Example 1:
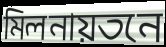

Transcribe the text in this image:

মিলনায়তনে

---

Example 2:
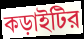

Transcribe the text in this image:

কড়াইটির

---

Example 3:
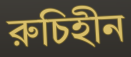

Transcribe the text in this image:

রুচিহীন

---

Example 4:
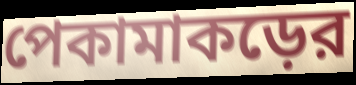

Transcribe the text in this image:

পেকামাকড়ের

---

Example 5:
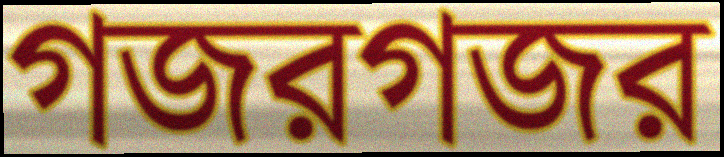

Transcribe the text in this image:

গজরগজর